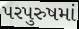
પરપુરુષમાં